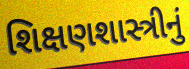
શિક્ષણશાસ્ત્રીનું